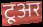
टूअर